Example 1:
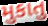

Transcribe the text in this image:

મુકાતુ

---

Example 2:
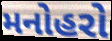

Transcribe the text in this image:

મનોહરો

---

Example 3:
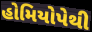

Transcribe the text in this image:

હોમિયોપેથી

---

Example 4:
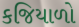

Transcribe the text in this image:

કજિયાળો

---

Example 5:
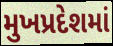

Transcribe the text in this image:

મુખપ્રદેશમાં